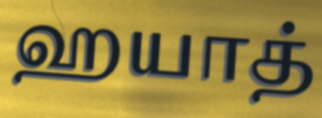
ஹயாத்